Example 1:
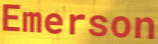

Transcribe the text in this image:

Emerson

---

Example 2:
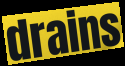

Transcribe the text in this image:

drains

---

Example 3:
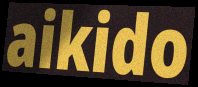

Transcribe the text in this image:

aikido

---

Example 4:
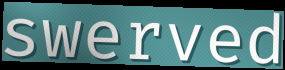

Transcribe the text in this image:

swerved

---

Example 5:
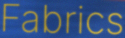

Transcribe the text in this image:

Fabrics